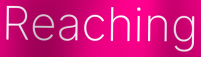
Reaching